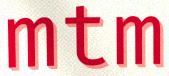
mtm